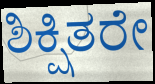
ಶಿಕ್ಷಿತರೇ